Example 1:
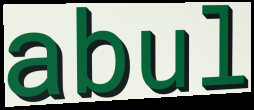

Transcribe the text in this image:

abul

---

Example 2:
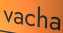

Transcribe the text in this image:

vacha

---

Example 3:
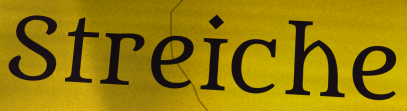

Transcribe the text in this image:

Streiche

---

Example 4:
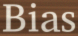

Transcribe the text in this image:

Bias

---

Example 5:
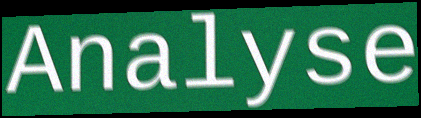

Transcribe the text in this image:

Analyse